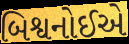
બિશ્વનોઈએ